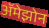
ॲमेझोन